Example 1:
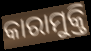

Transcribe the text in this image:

କାରାମୁକ୍ତି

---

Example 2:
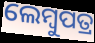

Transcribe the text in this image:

ଲେମ୍ବୁପତ୍ର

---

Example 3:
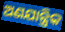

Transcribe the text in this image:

ଅଣଯାନ୍ତ୍ରିକ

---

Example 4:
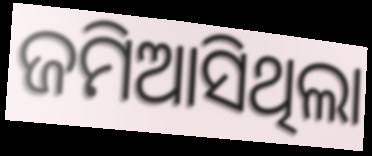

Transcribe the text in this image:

ଜମିଆସିଥିଲା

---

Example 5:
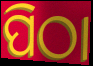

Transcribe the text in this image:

ପିଠା